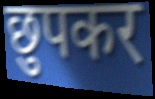
छुपकर